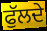
ਫੁੱਲਦੇ